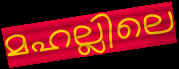
മഹല്ലിലെ